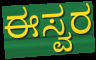
ಈಸ್ವರ